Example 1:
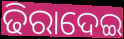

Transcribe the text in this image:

ଢିରାଦେଇ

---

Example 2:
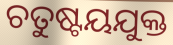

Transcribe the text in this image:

ଚତୁଷ୍ଟୟଯୁକ୍ତ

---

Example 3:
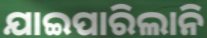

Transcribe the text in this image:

ଯାଇପାରିଲାନି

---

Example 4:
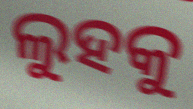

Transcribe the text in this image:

ଲୁହକୁ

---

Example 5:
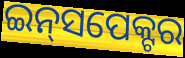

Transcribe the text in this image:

ଇନ୍‌ସପେକ୍ଟର